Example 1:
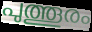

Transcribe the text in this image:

പുത്തൂരം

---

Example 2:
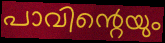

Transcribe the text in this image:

പാവിന്റെയും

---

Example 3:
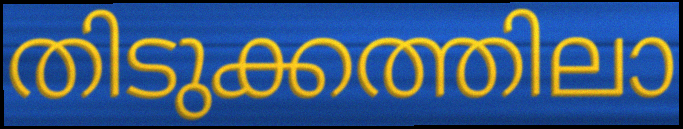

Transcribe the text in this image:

തിടുക്കത്തിലാ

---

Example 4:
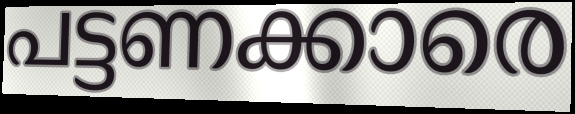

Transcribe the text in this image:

പട്ടണക്കാരെ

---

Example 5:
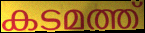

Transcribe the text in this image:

കടമത്ത്